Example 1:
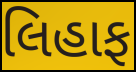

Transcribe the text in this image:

લિહાફ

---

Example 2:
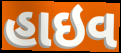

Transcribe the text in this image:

હાઇવ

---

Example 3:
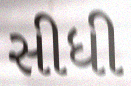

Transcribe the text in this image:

સીધી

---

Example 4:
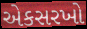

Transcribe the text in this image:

એકસરખો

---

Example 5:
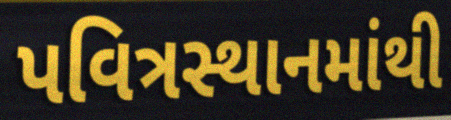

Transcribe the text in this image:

પવિત્રસ્થાનમાંથી